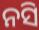
ନସି